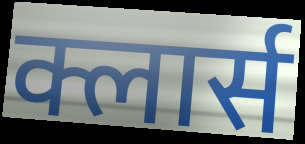
क्लार्स